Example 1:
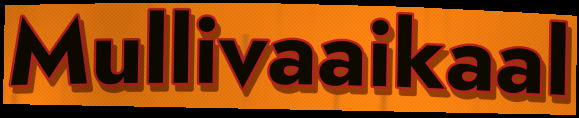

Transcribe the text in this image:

Mullivaaikaal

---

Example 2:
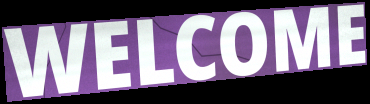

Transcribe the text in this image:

WELCOME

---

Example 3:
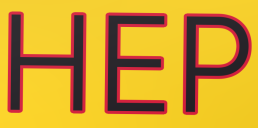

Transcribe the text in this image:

HEP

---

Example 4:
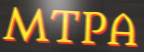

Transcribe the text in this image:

MTPA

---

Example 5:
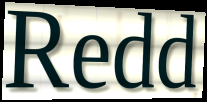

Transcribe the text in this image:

Redd